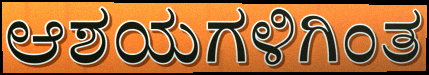
ಆಶಯಗಳಿಗಿಂತ